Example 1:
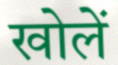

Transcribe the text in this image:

खोलें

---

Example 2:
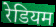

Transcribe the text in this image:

रेडियम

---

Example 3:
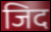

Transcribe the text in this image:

जिद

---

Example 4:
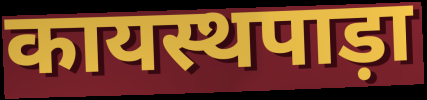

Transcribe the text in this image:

कायस्थपाड़ा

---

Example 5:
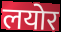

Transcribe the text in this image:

लयोर